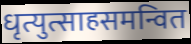
धृत्युत्साहसमन्वित